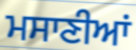
ਮਸਾਣੀਆਂ